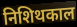
निशिथकाल